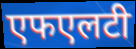
एफएलटी